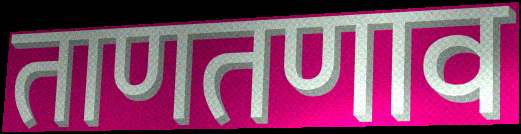
ताणतणाव